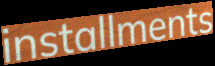
installments